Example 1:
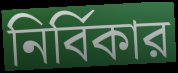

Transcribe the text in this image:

নির্বিকার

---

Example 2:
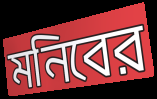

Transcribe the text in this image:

মনিবের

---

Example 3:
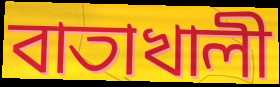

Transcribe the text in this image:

বাতাখালী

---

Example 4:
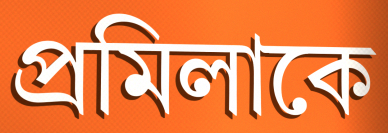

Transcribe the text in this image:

প্রমিলাকে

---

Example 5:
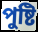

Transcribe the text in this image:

পুষ্টি